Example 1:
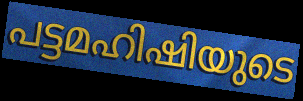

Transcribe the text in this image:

പട്ടമഹിഷിയുടെ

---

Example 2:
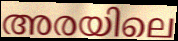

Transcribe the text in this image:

അരയിലെ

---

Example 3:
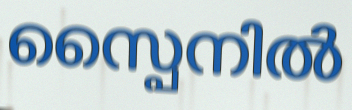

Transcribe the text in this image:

സ്പൈനിൽ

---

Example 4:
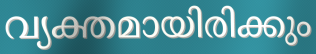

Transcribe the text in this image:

വ്യക്തമായിരിക്കും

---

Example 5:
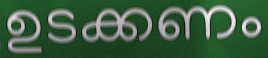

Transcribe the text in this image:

ഉടക്കണം